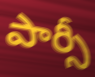
పార్సీ